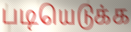
படியெடுக்க